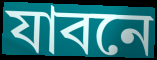
যাবনে